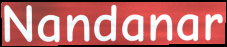
Nandanar